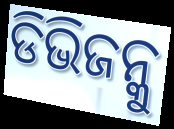
ଡିଭିଜନ୍କୁ